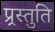
प्र्रस्तुति